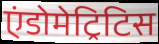
एंडोमेट्रिटिस